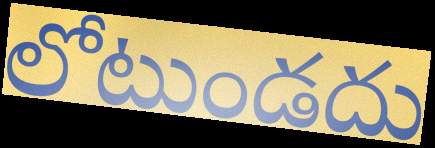
లోటుండదు